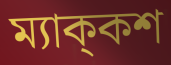
ম্যাক্‌কশ